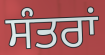
ਸੰਤਰਾਂ